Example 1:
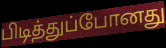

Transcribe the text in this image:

பிடித்துப்போனது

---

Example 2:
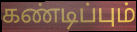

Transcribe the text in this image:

கண்டிப்பும்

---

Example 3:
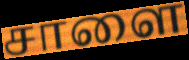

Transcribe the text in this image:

சாளை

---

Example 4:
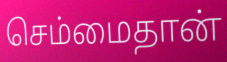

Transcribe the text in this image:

செம்மைதான்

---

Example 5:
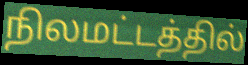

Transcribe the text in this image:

நிலமட்டத்தில்